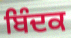
ਬਿੰਦਕ